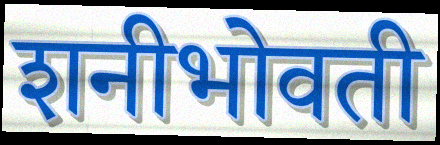
शनीभोवती